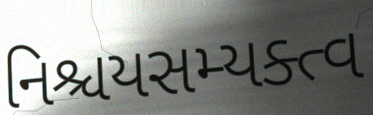
નિશ્ચયસમ્યક્ત્વ